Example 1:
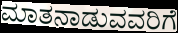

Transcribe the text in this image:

ಮಾತನಾಡುವವರಿಗೆ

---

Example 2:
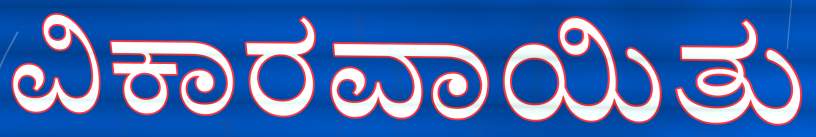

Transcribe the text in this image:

ವಿಕಾರವಾಯಿತು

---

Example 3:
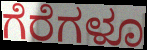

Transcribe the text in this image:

ಗೆರೆಗಳೂ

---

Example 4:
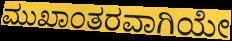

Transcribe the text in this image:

ಮುಖಾಂತರವಾಗಿಯೇ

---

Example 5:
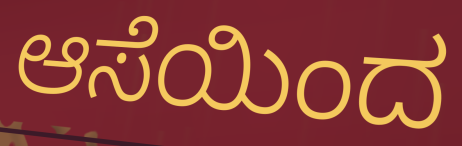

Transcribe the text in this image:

ಆಸೆಯಿಂದ